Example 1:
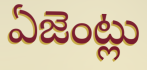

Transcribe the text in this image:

ఏజెంట్లు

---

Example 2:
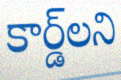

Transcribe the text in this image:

కార్డ్‌లని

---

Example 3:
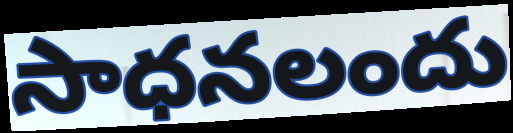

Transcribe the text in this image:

సాధనలందు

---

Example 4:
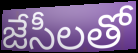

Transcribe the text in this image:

జేసీలతో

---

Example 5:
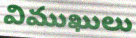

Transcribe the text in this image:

విముఖులు